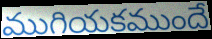
ముగియకముందే